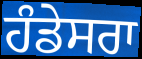
ਹੰਡੇਸਰਾ